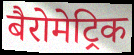
बैरोमेट्रिक